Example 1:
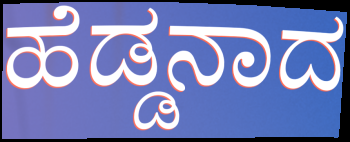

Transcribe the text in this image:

ಹೆಡ್ಡನಾದ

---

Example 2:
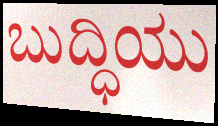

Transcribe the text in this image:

ಬುದ್ಧಿಯು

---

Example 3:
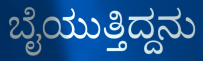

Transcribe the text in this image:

ಬೈಯುತ್ತಿದ್ದನು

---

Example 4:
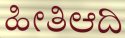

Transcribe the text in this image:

ಹೀತಿಆದಿ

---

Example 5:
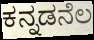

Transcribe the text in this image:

ಕನ್ನಡನೆಲ